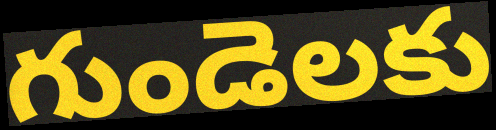
గుండెలకు